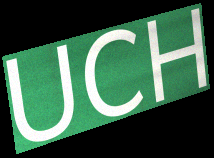
UCH